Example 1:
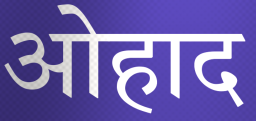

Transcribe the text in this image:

ओहाद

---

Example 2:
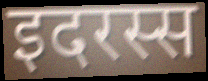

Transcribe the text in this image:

इदरस्स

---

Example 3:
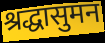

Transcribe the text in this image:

श्रद्धासुमन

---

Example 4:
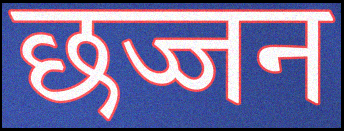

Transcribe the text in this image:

छज्जन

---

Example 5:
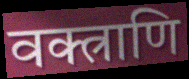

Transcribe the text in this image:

वक्त्राणि